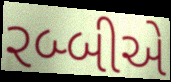
રબ્બીએ